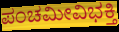
ಪಂಚಮೀವಿಭಕ್ತಿ